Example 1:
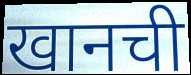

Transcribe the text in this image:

खानची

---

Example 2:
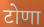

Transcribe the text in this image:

टोणा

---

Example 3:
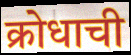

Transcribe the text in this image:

क्रोधाची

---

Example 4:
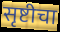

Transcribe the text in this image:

सृष्टीचा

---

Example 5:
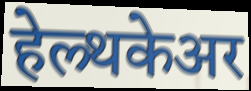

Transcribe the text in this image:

हेल्थकेअर